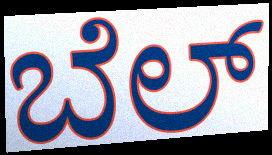
ಬೆಲ್